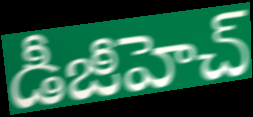
డీజీహెచ్